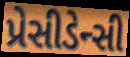
પ્રેસીડેન્સી